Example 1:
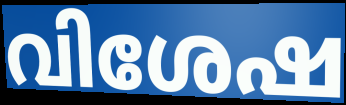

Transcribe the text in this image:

വിശേഷ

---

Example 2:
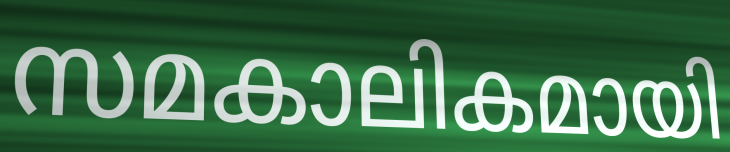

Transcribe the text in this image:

സമകാലികമായി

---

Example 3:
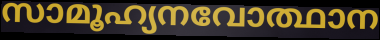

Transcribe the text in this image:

സാമൂഹ്യനവോത്ഥാന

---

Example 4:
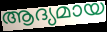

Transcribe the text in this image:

ആദ്യമായ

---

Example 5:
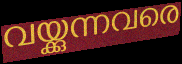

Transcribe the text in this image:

വയ്ക്കുന്നവരെ